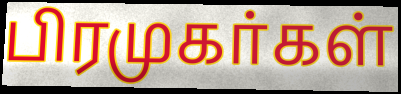
பிரமுகர்கள்